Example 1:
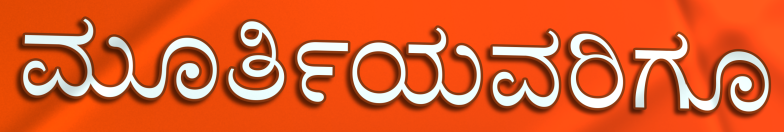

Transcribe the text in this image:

ಮೂರ್ತಿಯವರಿಗೂ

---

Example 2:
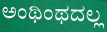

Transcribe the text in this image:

ಅಂಥಿಂಥದಲ್ಲ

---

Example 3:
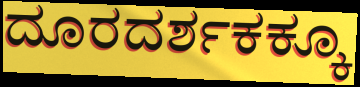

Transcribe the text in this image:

ದೂರದರ್ಶಕಕ್ಕೂ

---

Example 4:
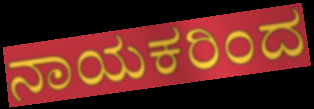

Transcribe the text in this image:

ನಾಯಕರಿಂದ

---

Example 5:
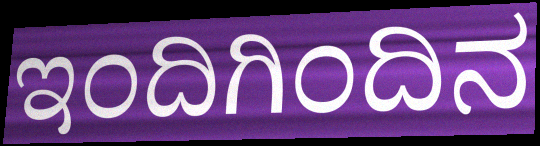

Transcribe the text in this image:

ಇಂದಿಗಿಂದಿನ